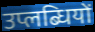
उप्लब्धियों